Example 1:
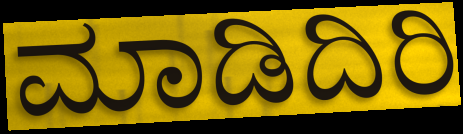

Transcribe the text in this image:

ಮಾಡಿದಿರಿ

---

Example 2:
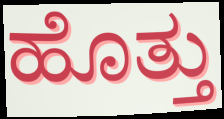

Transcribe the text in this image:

ಹೊತ್ತು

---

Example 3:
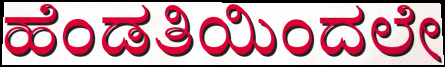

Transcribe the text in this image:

ಹೆಂಡತಿಯಿಂದಲೇ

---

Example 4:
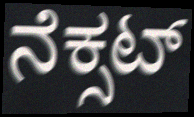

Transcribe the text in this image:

ನೆಕ್ಸಟ್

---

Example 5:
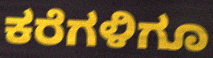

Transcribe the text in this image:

ಕರೆಗಳಿಗೂ